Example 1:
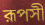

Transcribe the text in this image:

রূপসী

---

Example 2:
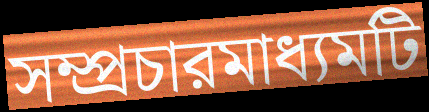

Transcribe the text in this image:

সম্প্রচারমাধ্যমটি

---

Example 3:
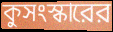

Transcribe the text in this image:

কুসংস্কারের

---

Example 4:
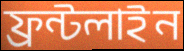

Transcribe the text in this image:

ফ্রন্টলাইন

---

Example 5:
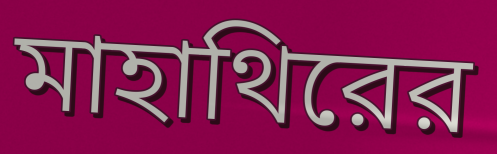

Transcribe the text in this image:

মাহাথিরের